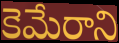
కెమేరాని